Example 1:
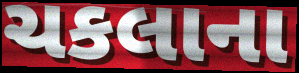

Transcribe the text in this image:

ચકલાના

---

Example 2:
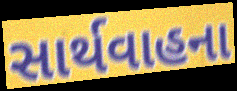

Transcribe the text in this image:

સાર્થવાહના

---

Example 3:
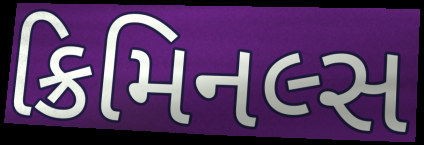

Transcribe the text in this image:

ક્રિમિનલ્સ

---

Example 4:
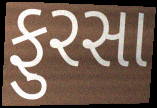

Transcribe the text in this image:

ફુરસા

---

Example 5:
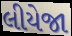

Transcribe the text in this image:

લીયેજા